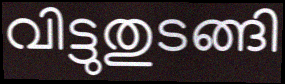
വിട്ടുതുടങ്ങി